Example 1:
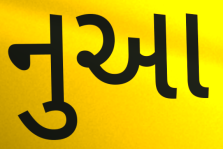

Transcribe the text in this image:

નુઆ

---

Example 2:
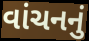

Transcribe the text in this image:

વાંચનનું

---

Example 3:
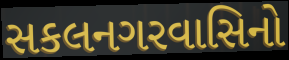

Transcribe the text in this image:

સકલનગરવાસિનો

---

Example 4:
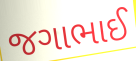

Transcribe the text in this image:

જગાભાઈ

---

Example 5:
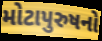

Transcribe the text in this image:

મોટાપુરુષનો